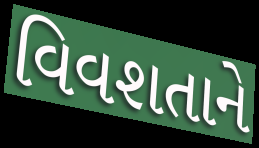
વિવશતાને